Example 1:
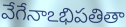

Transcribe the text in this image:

వేగేనాఽభిపతితా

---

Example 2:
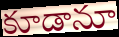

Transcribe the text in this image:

కూడానూ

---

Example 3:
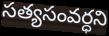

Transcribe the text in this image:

సత్యసంవర్ధని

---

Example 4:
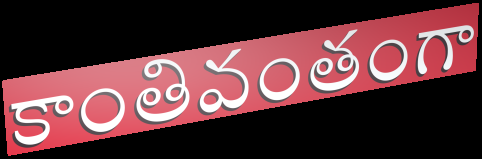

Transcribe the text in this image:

కాంతివంతంగా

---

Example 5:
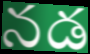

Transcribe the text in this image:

నడ